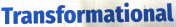
Transformational